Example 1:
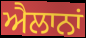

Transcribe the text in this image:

ਐਲਾਨਾਂ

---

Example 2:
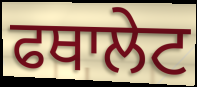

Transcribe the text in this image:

ਫਥਾਲੇਟ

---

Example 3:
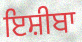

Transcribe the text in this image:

ਇਸ਼ੀਬਾ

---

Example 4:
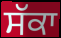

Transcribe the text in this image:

ਸੱਕਾ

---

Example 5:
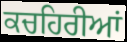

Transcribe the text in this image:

ਕਚਹਿਰੀਆਂ